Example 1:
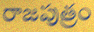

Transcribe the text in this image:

రాజపుత్రం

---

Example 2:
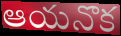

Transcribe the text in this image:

ఆయనొక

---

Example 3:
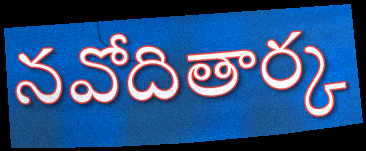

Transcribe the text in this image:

నవోదితార్క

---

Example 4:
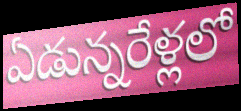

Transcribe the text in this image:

ఏడున్నరేళ్లలో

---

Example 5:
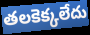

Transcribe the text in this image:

తలకెక్కలేదు